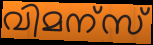
വിമന്സ്